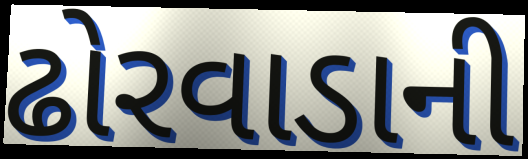
ઢોરવાડાની